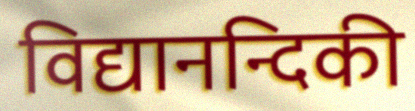
विद्यानन्दिकी